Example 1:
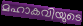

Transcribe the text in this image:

മഹാകവിയുടെ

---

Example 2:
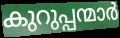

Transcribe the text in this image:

കുറുപ്പന്മാർ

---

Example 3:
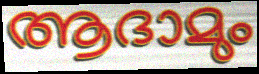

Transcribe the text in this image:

ആദാമും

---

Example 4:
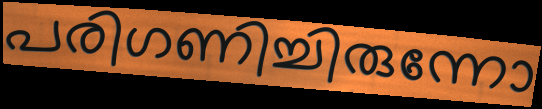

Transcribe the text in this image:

പരിഗണിച്ചിരുന്നോ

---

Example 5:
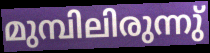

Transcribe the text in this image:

മുമ്പിലിരുന്നു്